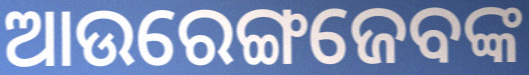
ଆଉରେଙ୍ଗଜେବଙ୍କ